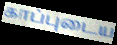
காப்புடைய